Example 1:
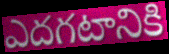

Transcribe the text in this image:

ఎదగటానికి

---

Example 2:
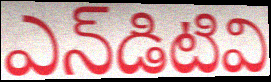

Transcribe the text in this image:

ఎన్‌డిటివి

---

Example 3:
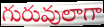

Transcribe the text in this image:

గురువులాగా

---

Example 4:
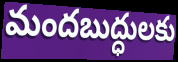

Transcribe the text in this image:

మందబుద్ధులకు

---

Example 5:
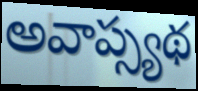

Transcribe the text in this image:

అవాప్స్యథ